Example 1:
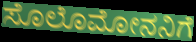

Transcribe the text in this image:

ಸೊಲೊಮೋನನಿಗೆ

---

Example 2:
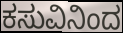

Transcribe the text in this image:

ಕಸುವಿನಿಂದ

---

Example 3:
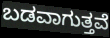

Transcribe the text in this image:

ಬಡವಾಗುತ್ತವೆ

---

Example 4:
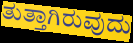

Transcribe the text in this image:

ತುತ್ತಾಗಿರುವುದು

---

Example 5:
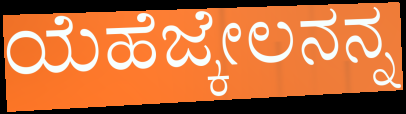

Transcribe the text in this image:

ಯೆಹೆಜ್ಕೇಲನನ್ನ